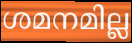
ശമനമില്ല